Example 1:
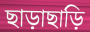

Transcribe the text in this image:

ছাড়াছাড়ি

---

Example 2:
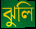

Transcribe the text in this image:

ঝুলি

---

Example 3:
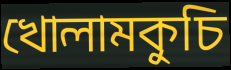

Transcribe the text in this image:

খোলামকুচি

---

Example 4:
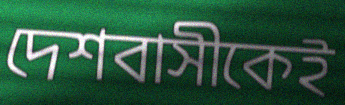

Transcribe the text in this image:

দেশবাসীকেই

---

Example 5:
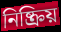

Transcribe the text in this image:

নিষ্ক্রিয়